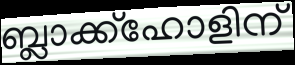
ബ്ലാക്ക്ഹോളിന്